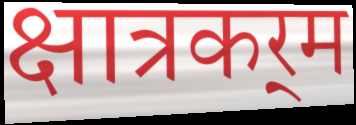
क्षात्रकर्म